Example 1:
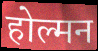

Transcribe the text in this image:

होल्मन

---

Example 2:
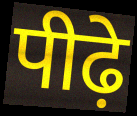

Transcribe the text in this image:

पीढ़े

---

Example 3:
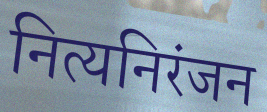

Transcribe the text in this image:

नित्यनिरंजन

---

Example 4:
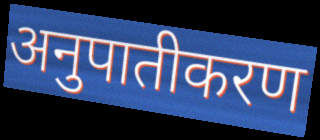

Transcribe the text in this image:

अनुपातीकरण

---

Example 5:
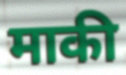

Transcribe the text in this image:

माकी